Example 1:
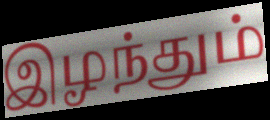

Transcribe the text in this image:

இழந்தும்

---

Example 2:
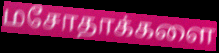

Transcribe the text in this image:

மசோதாக்களை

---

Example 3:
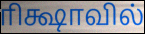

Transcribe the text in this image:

ரிக்ஷாவில்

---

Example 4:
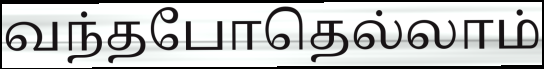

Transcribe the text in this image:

வந்தபோதெல்லாம்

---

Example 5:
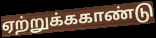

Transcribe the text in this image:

ஏற்றுக்ககாண்டு